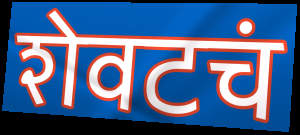
शेवटचं